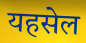
यहसेल